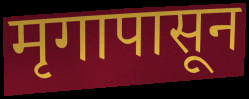
मृगापासून